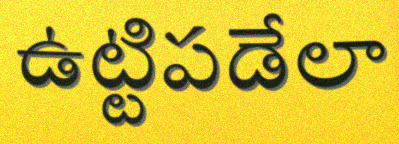
ఉట్టిపడేలా